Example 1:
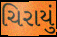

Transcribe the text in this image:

ચિરાયું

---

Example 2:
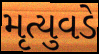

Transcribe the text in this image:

મૃત્યુવડે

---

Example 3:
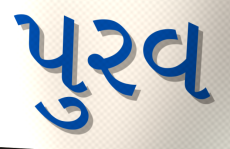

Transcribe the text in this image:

પુરવ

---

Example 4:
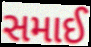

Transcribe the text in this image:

સમાઈ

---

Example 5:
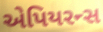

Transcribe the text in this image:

એપિયરન્સ